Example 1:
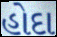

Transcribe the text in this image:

હોદા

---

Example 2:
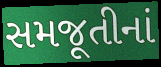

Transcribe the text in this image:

સમજૂતીનાં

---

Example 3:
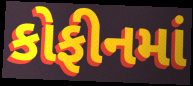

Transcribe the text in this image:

કોફીનમાં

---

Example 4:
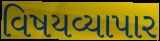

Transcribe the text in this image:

વિષયવ્યાપાર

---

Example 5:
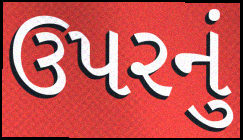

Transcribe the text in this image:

ઉપરનું